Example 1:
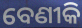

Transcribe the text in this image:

ବେଣୀକି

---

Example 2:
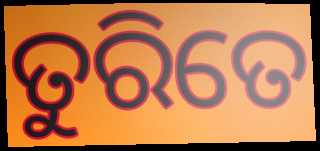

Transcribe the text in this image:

ତୁରିତେ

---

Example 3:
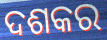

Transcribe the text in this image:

ଦଶକର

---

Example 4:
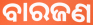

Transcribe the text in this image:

ବାରଜଣ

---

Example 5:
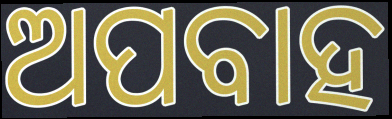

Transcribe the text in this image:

ଅପବାହ